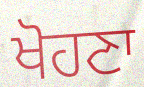
ਖੋਹਣਾ